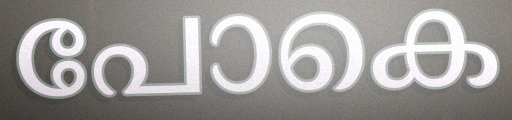
പോകെ